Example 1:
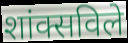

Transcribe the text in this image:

शांक्सविले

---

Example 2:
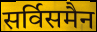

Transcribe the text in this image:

सर्विसमैन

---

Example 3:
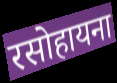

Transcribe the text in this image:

रसोहायना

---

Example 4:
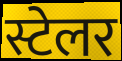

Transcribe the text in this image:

स्टेलर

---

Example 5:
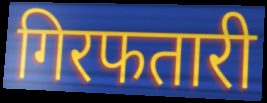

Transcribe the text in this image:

गिरफतारी